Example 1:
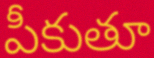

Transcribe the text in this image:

పీకుతూ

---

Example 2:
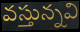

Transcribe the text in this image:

వస్తున్నవి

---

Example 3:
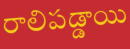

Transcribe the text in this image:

రాలిపడ్డాయి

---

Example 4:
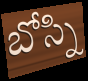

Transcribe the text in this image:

బోస్ని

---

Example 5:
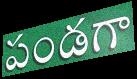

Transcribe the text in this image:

పండగా